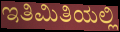
ಇತಿಮಿತಿಯಲ್ಲಿ